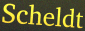
Scheldt